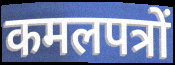
कमलपत्रों